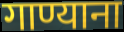
गाण्याना